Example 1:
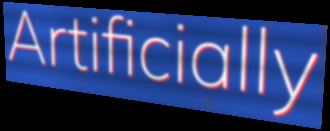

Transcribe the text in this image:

Artificially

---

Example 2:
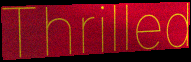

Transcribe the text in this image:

Thrilled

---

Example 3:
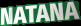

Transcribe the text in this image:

NATANA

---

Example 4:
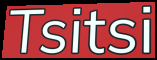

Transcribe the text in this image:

Tsitsi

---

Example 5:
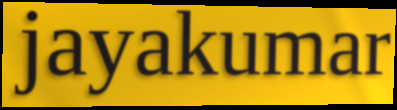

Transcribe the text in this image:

jayakumar